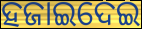
ହଜାଇଦେଇ